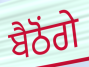
ਬੈਠੋਂਗੇ